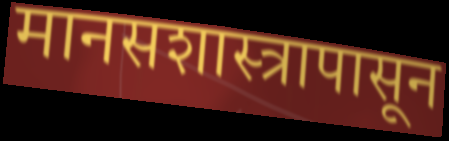
मानसशास्त्रापासून